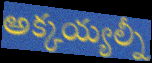
అక్కయ్యల్నీ